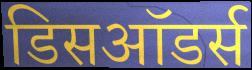
डिसऑडर्स